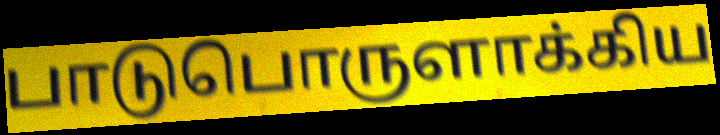
பாடுபொருளாக்கிய